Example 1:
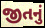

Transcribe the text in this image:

જીતનું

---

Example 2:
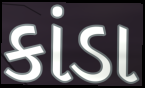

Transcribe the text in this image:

કાંડા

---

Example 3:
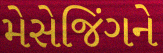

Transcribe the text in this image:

મેસેજિંગને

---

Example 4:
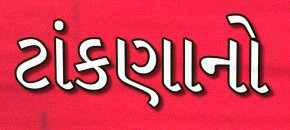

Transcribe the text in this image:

ટાંકણાનો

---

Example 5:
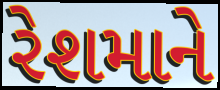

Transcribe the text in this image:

રેશમાને